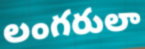
లంగరులా